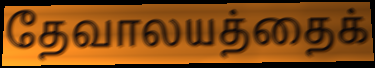
தேவாலயத்தைக்